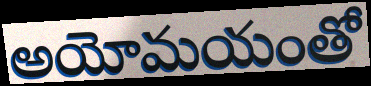
అయోమయంతో